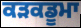
ਕੜਕਡੂਮਾ